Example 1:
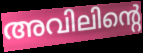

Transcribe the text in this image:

അവിലിന്റെ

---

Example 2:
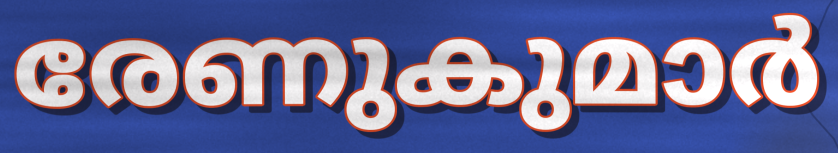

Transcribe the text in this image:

രേണുകുമാർ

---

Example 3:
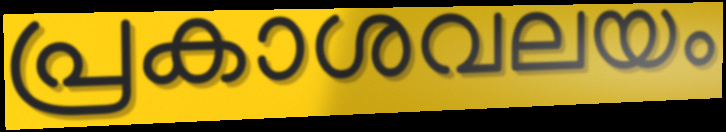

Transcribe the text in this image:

പ്രകാശവലയം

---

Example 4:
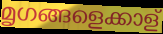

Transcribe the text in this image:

മൃഗങ്ങളെക്കാള്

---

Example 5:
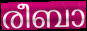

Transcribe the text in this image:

രീബാ